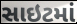
સાઇટમાં